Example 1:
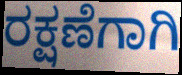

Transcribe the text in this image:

ರಕ್ಷಣೆಗಾಗಿ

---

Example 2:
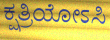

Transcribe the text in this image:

ಕ್ಷತ್ರಿಯೋಽಸಿ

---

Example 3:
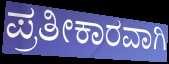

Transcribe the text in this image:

ಪ್ರತೀಕಾರವಾಗಿ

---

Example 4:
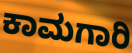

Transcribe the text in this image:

ಕಾಮಗಾರಿ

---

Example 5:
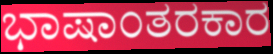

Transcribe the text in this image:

ಭಾಷಾಂತರಕಾರ